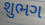
શુભગ